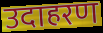
उदाहरण